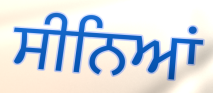
ਸੀਨਿਆਂ